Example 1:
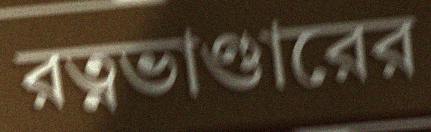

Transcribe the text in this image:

রত্নভাণ্ডারের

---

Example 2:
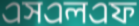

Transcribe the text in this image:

এসএলএফ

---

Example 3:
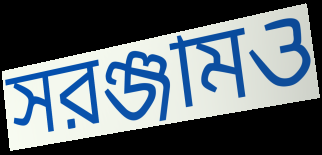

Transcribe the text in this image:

সরঞ্জামও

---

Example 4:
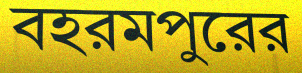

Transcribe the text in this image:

বহরমপুরের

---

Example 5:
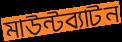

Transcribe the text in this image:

মাউন্টব্যাটন